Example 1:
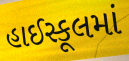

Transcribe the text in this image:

હાઈસ્કૂલમાં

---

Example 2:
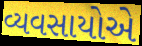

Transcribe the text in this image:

વ્યવસાયોએ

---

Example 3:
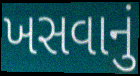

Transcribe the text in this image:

ખસવાનું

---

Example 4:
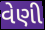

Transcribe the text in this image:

વેણી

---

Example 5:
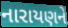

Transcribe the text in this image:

નારાયણને